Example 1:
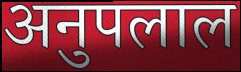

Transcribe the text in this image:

अनुपलाल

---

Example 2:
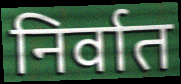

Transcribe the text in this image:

निर्वात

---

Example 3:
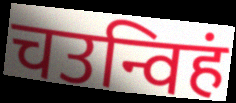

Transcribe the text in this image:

चउन्विहं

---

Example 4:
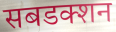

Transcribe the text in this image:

सबडक्शन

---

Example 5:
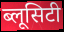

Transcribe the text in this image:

ब्लूसिटी